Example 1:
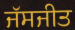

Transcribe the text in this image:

ਜੱਸਜੀਤ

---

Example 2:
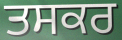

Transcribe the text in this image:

ਤਸਕਰ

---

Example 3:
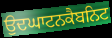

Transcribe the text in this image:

ਉਦਘਾਟਨਕੈਬਨਿਟ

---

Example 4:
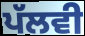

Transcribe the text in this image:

ਪੱਲਵੀ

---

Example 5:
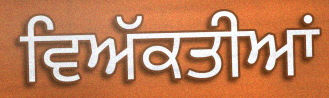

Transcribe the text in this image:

ਵਿਅੱਕਤੀਆਂ